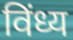
विंध्य